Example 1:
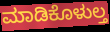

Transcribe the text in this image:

ಮಾಡಿಕೊಳುಲ್ತ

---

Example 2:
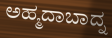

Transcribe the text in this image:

ಅಹ್ಮದಾಬಾದ್ನ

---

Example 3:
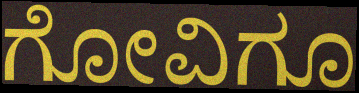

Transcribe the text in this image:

ಗೋವಿಗೂ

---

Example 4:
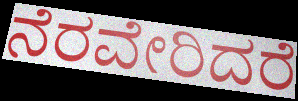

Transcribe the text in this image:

ನೆರವೇರಿದರೆ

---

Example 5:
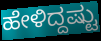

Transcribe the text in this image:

ಹೇಳಿದ್ದಷ್ಟು